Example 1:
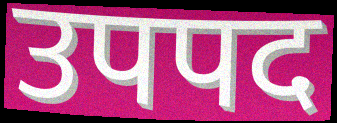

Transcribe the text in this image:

उपपद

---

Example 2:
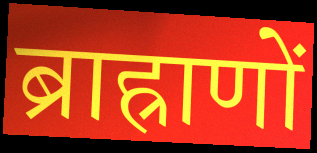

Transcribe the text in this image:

ब्राह्राणों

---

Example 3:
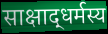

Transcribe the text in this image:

साक्षाद्धर्मस्य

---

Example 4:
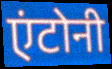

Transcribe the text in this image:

एंटोनी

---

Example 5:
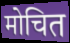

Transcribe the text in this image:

मोचित